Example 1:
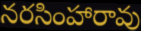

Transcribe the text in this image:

నరసింహారావు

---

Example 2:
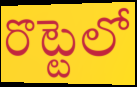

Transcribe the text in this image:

రొట్టెలో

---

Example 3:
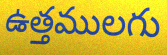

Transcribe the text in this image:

ఉత్తములగు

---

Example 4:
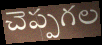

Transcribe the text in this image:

చెప్పగల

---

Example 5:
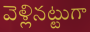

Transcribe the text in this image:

వెళ్లినట్టుగా